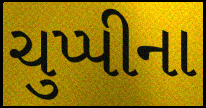
ચુપ્પીના